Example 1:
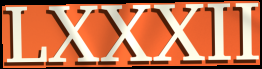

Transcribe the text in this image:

LXXXII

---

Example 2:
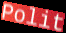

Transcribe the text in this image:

Polit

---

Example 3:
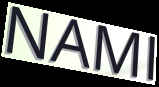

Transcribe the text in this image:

NAMI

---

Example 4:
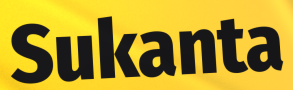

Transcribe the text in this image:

Sukanta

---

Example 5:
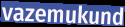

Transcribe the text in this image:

vazemukund